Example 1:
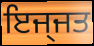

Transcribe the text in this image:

ਇਜ੍ਜਤ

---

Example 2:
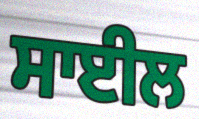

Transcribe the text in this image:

ਸਾਈਲ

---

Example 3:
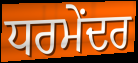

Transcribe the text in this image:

ਧਰਮੇਂਦਰ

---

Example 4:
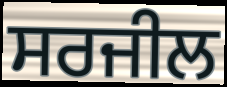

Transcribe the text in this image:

ਸਰਜੀਲ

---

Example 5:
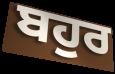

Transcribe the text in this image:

ਬਹੁਰ